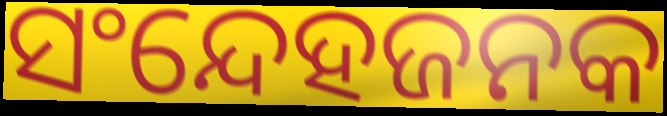
ସଂନ୍ଦେହଜନକ